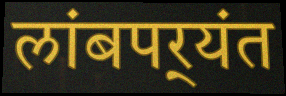
लांबपर्यंत